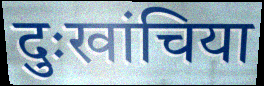
दुःखांचिया